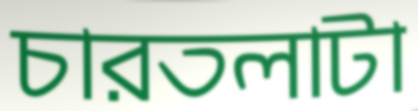
চারতলাটা